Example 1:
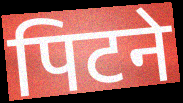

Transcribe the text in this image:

पिटने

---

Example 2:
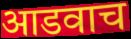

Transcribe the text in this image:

आडवाच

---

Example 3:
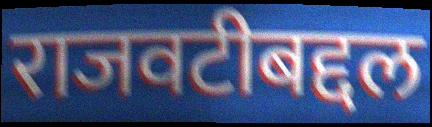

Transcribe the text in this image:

राजवटीबद्दल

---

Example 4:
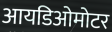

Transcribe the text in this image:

आयडिओमोटर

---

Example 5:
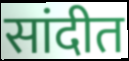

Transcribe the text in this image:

सांदीत